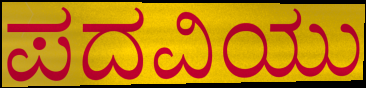
ಪದವಿಯು